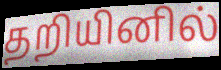
தறியினில்